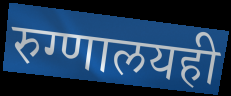
रुग्णालयही